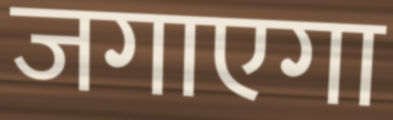
जगाएगा